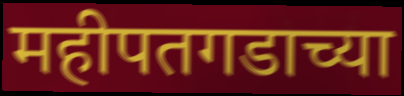
महीपतगडाच्या